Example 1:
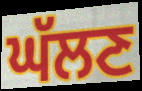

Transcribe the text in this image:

ਘੱਲਣ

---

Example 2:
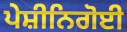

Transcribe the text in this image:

ਪੇਸ਼ੀਨਿਗੋਈ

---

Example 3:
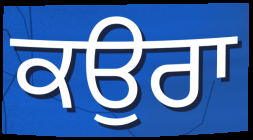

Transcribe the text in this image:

ਕਉਰਾ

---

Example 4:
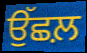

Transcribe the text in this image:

ਉੱਛਲ਼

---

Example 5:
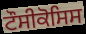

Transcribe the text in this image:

ਟੌਸੀਕੋਸਿਸ